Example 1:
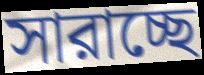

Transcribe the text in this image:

সারাচ্ছে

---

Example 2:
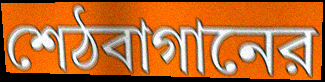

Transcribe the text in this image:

শেঠবাগানের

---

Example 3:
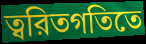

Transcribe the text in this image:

ত্বরিতগতিতে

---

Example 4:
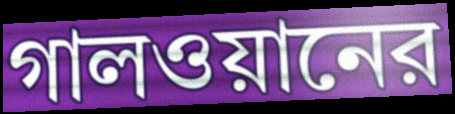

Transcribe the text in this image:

গালওয়ানের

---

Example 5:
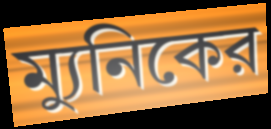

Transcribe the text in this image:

ম্যুনিকের